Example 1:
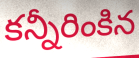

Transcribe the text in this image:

కన్నీరింకిన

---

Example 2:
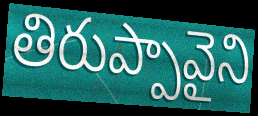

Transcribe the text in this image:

తిరుప్పావైని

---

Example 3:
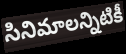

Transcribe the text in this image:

సినిమాలన్నిటికీ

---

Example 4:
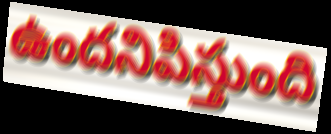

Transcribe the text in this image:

ఉందనిపిస్తుంది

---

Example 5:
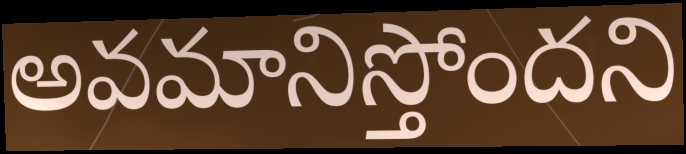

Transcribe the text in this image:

అవమానిస్తోందని